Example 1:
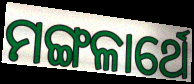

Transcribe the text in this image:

ମଙ୍ଗଳାର୍ଥେ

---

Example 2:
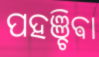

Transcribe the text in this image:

ପହଞ୍ଚିଵା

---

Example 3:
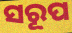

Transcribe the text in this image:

ସରୂପ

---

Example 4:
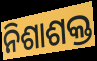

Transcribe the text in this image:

ନିଶାଶକ୍ତ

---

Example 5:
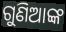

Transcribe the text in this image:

ଗୁଣିଆଙ୍କ